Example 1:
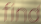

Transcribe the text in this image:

find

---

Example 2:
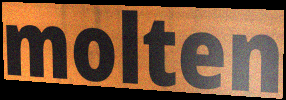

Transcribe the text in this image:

molten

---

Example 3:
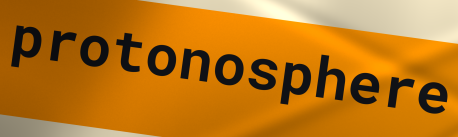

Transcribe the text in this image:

protonosphere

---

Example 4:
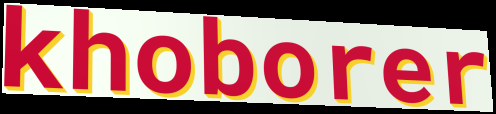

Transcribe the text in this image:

khoborer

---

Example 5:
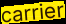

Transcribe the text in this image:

carrier